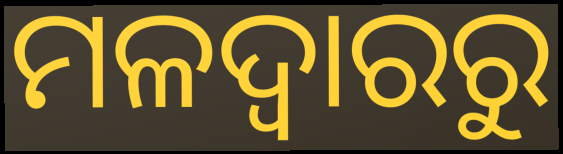
ମଳଦ୍ୱାରରୁ